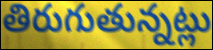
తిరుగుతున్నట్లు